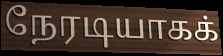
நேரடியாகக்